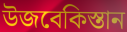
উজবেকিস্তান